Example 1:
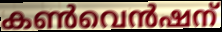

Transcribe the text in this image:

കൺവെൻഷന്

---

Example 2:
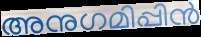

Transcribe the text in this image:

അനുഗമിപ്പിൻ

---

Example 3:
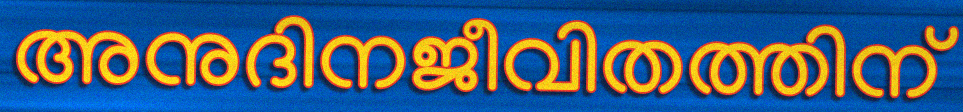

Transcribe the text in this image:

അനുദിനജീവിതത്തിന്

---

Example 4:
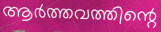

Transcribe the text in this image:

ആർത്തവത്തിന്റെ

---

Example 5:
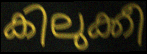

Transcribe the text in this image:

കിലുക്കീ